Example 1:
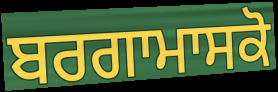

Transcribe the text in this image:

ਬਰਗਾਮਾਸਕੋ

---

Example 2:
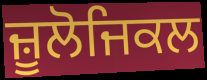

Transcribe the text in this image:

ਜ਼ੂਲੋਜਿਕਲ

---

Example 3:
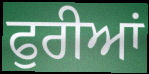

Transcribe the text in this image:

ਫੁਰੀਆਂ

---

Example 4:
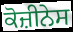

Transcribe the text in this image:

ਕੋਜ਼ੀਨੇਸ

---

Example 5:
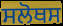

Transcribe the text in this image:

ਸਲੋਥਸ